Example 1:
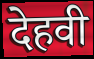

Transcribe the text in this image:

देहवी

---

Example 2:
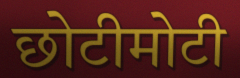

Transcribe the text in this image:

छोटीमोटी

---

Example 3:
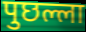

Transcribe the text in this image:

पुछल्ला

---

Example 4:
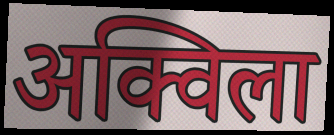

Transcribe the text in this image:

अक्विला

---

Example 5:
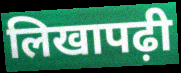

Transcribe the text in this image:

लिखापढ़ी